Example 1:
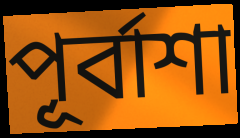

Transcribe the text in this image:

পূর্বাশা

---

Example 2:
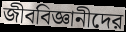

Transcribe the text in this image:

জীববিজ্ঞানীদের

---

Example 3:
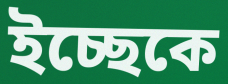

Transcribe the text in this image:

ইচ্ছেকে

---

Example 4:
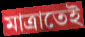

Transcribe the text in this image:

মাত্রাতেই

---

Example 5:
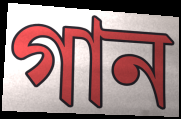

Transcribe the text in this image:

গান